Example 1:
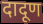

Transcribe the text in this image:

दादूण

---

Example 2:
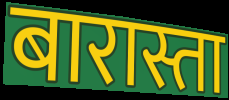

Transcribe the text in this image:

बारास्ता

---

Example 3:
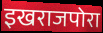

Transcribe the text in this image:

इखराजपोरा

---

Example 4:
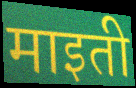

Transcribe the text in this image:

माइती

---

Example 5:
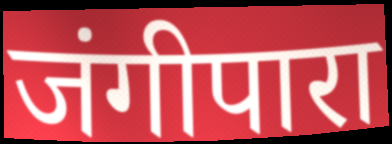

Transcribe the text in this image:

जंगीपारा